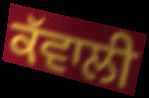
ਕੱਵਾਲੀ